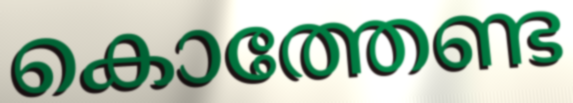
കൊത്തേണ്ട